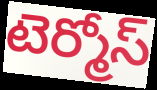
టెర్మోస్